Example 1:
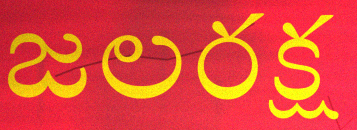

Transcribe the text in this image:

జలరక్ష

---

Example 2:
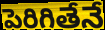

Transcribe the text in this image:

పెరిగితేనే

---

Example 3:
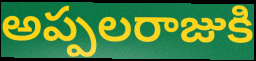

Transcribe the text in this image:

అప్పలరాజుకి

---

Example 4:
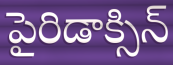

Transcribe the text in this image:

పైరిడాక్సిన్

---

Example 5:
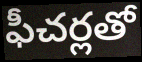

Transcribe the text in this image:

ఫీచర్లతో